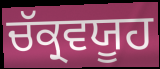
ਚੱਕ੍ਰਵਯੂਹ